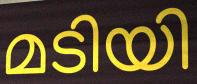
മടിയി